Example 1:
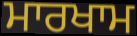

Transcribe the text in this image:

ਮਾਰਖਾਮ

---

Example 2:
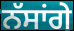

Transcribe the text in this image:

ਨੱਸਾਂਗੇ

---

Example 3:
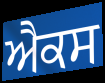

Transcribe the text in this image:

ਐਕਸ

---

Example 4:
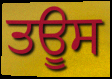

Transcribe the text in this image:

ਤਊਸ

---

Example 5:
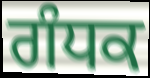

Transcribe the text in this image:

ਗੰਧਕ